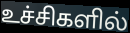
உச்சிகளில்